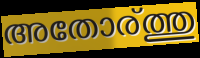
അതോര്ത്തു